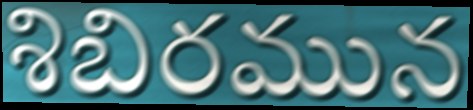
శిబిరమున